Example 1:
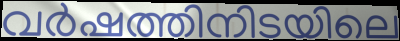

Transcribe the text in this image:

വർഷത്തിനിടയിലെ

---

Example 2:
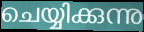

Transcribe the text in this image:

ചെയ്യിക്കുന്നു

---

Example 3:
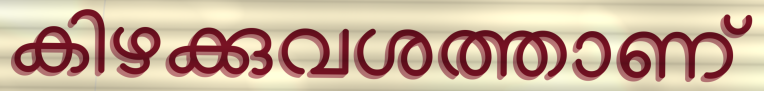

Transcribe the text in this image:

കിഴക്കുവശത്താണ്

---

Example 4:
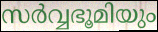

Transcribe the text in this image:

സർവ്വഭൂമിയും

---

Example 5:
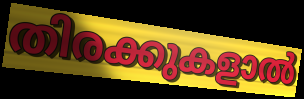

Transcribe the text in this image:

തിരക്കുകളാൽ